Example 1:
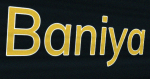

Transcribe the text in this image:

Baniya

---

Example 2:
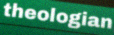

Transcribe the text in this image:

theologian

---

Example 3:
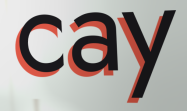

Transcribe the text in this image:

cay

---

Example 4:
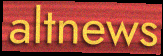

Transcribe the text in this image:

altnews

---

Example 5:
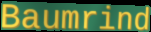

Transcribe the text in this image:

Baumrind